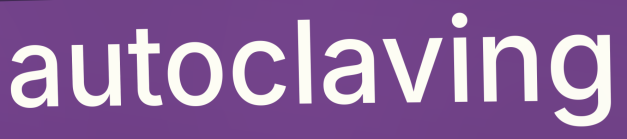
autoclaving